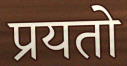
प्रयतो